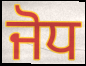
ਜੋਧ